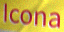
Icona